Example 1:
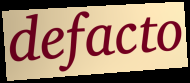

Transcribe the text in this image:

defacto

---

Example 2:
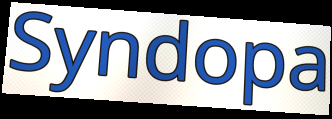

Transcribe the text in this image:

Syndopa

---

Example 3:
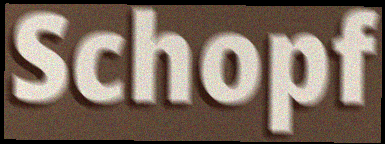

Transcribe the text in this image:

Schopf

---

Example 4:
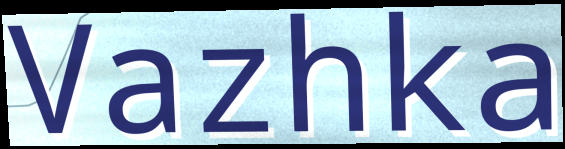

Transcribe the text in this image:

Vazhka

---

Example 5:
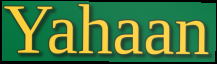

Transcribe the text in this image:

Yahaan